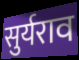
सुर्यराव